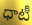
ధాటీ